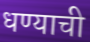
धण्याची